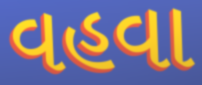
વહવા